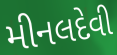
મીનલદેવી